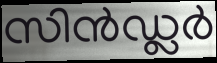
സിൻഡ്ലർ